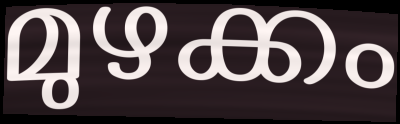
മുഴക്കം